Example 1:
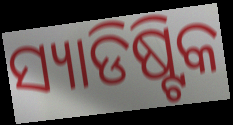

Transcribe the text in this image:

ସ୍ୟାଡିଷ୍ଟିକ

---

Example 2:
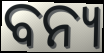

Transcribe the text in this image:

ବନ୍ୟ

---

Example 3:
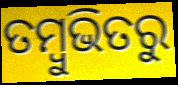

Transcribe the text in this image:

ତମ୍ବୁଭିତରୁ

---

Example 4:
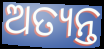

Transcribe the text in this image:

ଅତ୍ୟନ୍ତ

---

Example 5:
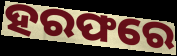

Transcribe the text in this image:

ହରଫରେ